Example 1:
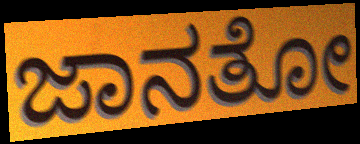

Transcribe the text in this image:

ಜಾನತೋ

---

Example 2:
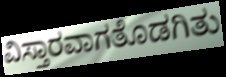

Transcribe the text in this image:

ವಿಸ್ತಾರವಾಗತೊಡಗಿತು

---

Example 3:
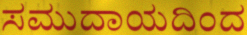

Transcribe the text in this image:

ಸಮುದಾಯದಿಂದ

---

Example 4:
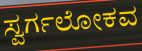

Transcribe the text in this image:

ಸ್ವರ್ಗಲೋಕವ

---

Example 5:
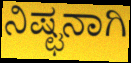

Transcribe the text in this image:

ನಿಷ್ಟನಾಗಿ